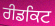
ਰੀਡਕਿਟ